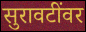
सुरावटींवर